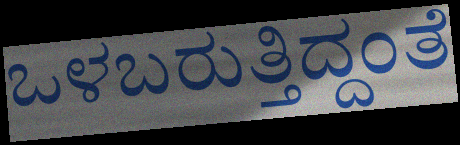
ಒಳಬರುತ್ತಿದ್ದಂತೆ